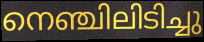
നെഞ്ചിലിടിച്ചു